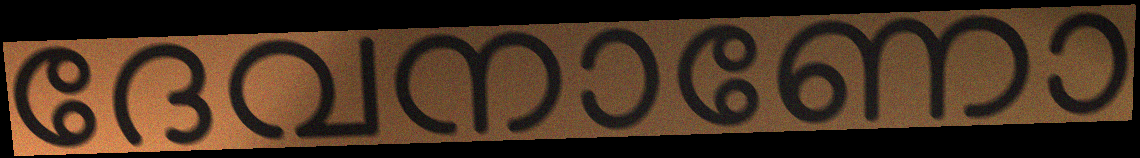
ദേവനാണോ